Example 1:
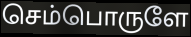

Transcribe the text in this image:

செம்பொருளே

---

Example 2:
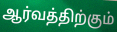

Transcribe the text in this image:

ஆர்வத்திற்கும்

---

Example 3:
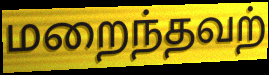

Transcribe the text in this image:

மறைந்தவற்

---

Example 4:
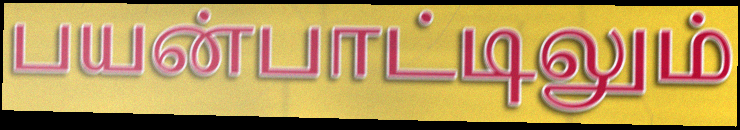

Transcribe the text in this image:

பயன்பாட்டிலும்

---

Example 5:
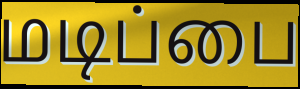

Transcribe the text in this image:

மடிப்பை